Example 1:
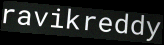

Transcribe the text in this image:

ravikreddy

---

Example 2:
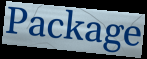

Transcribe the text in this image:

Package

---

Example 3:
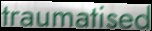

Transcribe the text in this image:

traumatised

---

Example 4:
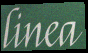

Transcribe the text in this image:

linea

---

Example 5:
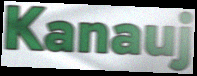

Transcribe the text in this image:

Kanauj